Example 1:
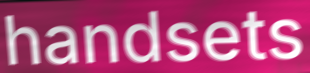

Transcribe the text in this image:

handsets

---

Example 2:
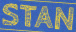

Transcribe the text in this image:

STAN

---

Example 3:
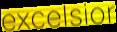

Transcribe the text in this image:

excelsior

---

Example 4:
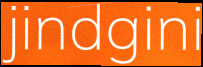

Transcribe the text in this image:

jindgini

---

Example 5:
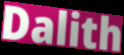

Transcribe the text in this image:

Dalith